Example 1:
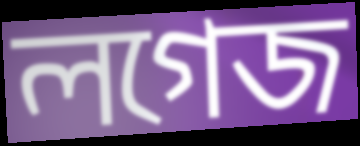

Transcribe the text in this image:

লগেজ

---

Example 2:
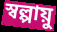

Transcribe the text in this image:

স্বল্পায়ু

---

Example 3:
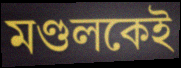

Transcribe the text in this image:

মণ্ডলকেই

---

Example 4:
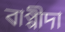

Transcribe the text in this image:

বাপ্পীদা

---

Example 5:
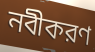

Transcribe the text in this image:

নবীকরণ